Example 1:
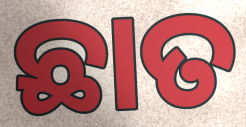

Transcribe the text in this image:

ଛାତ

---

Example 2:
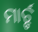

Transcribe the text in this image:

ମାର୍ଚ୍ଚ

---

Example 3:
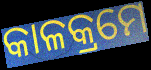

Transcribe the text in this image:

କାଳକ୍ରମେ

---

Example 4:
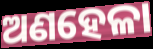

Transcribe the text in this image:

ଅଣହେଳା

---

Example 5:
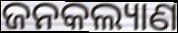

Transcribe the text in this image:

ଜନକଲ୍ୟାଣ